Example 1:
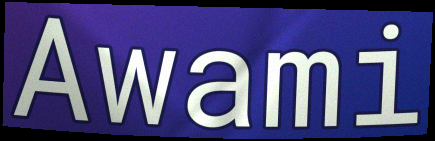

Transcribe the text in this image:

Awami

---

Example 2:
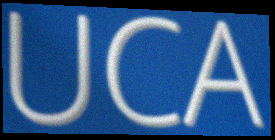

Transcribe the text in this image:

UCA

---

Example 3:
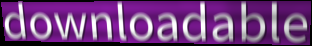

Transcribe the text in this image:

downloadable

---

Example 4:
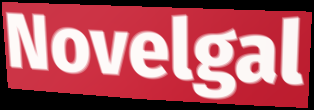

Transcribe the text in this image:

Novelgal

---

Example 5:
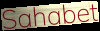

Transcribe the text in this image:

Sahabet